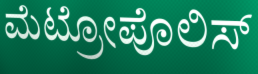
ಮೆಟ್ರೋಪೊಲಿಸ್